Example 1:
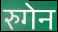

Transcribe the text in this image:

रुगेन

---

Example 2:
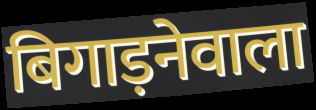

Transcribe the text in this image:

बिगाड़नेवाला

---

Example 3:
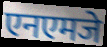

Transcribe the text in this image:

एनएमजे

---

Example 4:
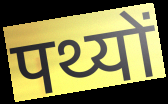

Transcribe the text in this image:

पथ्यों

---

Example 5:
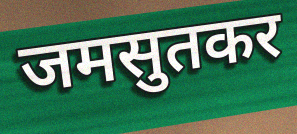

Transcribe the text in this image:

जमसुतकर